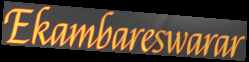
Ekambareswarar